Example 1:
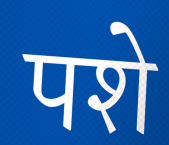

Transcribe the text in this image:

पशे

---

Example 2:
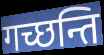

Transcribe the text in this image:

गच्छन्ति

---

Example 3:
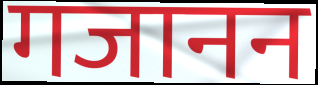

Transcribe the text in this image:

गजानन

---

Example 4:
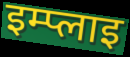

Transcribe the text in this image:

इम्प्लाइ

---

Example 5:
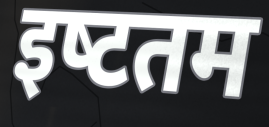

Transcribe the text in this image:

इष्‍टतम